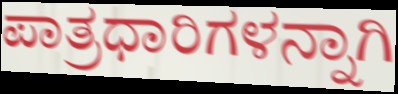
ಪಾತ್ರಧಾರಿಗಳನ್ನಾಗಿ